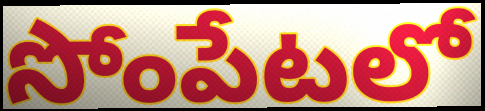
సోంపేటలో